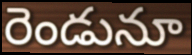
రెండునూ